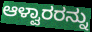
ಆಳ್ವಾರರನ್ನು